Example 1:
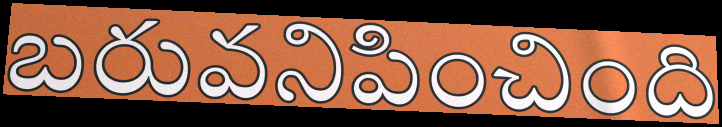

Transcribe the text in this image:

బరువనిపించింది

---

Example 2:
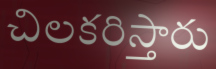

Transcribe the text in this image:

చిలకరిస్తారు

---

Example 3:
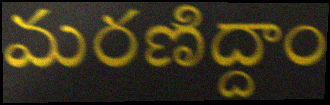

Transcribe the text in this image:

మరణిద్దాం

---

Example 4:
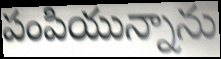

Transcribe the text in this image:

పంపియున్నాను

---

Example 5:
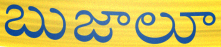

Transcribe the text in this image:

బుజాలూ